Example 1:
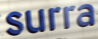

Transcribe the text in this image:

surra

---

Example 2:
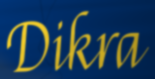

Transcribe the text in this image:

Dikra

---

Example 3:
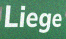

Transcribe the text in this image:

Liege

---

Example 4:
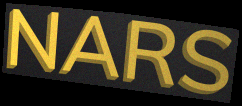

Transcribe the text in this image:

NARS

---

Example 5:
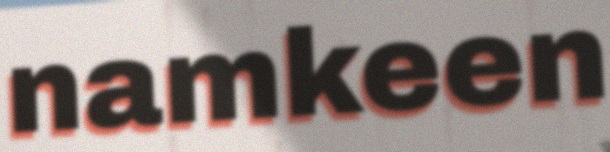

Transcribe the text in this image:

namkeen